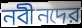
নবীনদের